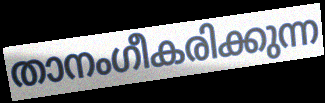
താനംഗീകരിക്കുന്ന